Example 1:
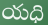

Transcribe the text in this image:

యధి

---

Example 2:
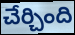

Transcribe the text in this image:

చేర్చింది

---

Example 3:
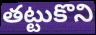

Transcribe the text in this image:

తట్టుకొని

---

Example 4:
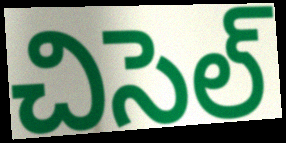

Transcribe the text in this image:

చిసెల్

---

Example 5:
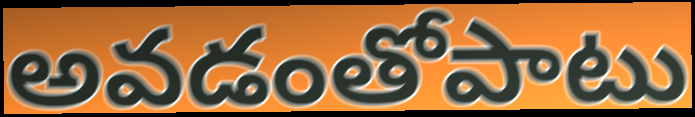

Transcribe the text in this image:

అవడంతోపాటు